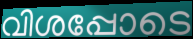
വിശപ്പോടെ